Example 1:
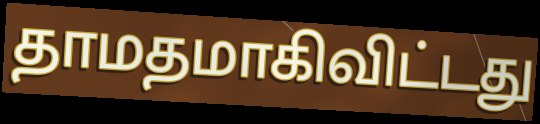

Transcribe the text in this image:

தாமதமாகிவிட்டது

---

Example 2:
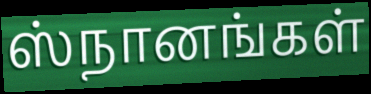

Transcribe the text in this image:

ஸ்நானங்கள்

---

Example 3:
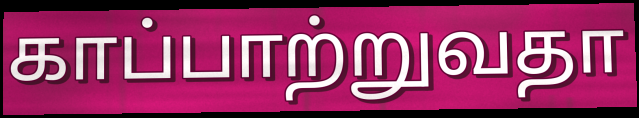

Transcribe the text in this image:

காப்பாற்றுவதா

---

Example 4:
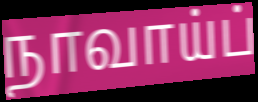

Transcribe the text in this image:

நாவாய்ப்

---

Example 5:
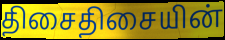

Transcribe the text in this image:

திசைதிசையின்